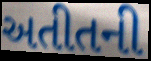
અતીતની